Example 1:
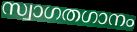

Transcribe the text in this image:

സ്വാഗതഗാനം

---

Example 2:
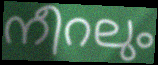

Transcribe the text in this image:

നീറലും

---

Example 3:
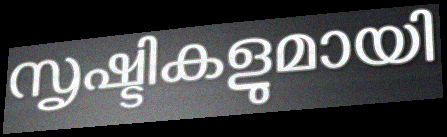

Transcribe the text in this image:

സൃഷ്ടികളുമായി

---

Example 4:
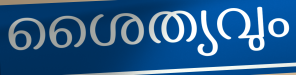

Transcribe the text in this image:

ശൈത്യവും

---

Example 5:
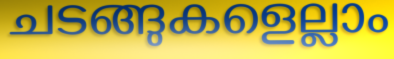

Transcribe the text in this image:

ചടങ്ങുകളെല്ലാം